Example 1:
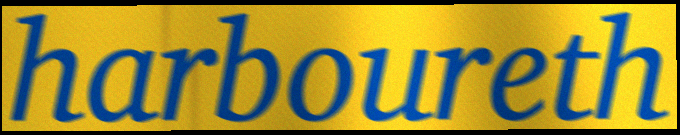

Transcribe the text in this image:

harboureth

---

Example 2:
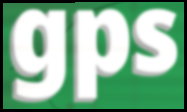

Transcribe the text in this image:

gps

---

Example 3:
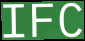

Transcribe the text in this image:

IFC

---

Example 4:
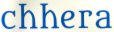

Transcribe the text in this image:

chhera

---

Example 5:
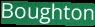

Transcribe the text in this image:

Boughton